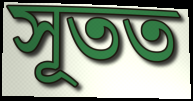
সূতত